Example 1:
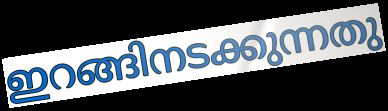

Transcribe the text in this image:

ഇറങ്ങിനടക്കുന്നതു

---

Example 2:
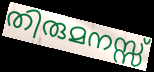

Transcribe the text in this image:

തിരുമനസ്സ്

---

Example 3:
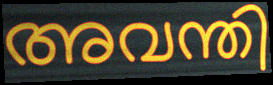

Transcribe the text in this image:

അവന്തി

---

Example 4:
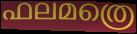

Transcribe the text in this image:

ഫലമത്രെ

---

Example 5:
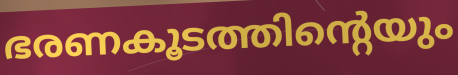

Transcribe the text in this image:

ഭരണകൂടത്തിന്റെയും